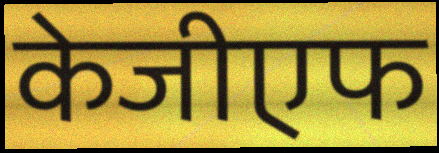
केजीएफ